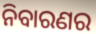
ନିବାରଣର